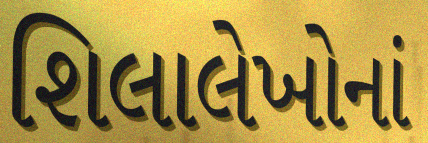
શિલાલેખોનાં